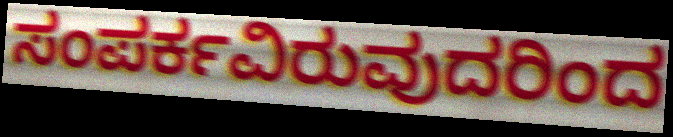
ಸಂಪರ್ಕವಿರುವುದರಿಂದ